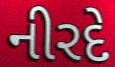
નીરદે